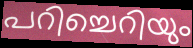
പറിച്ചെറിയും